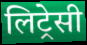
लिट्रेसी